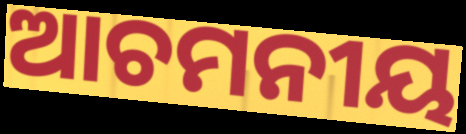
ଆଚମନୀୟ